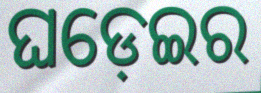
ଘଡ଼େଇର